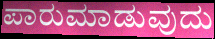
ಪಾರುಮಾಡುವುದು